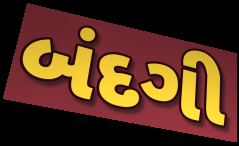
બંદગી